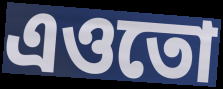
এওতো